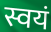
स्वयं